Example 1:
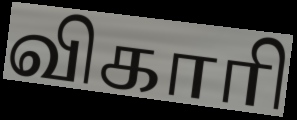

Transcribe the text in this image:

விகாரி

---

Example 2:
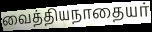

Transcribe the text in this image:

வைத்தியநாதையர்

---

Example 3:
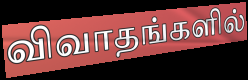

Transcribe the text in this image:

விவாதங்களில்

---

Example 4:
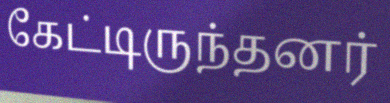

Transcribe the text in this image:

கேட்டிருந்தனர்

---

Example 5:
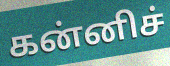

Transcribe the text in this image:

கன்னிச்